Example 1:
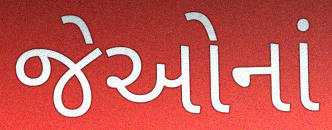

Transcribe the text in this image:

જેઓનાં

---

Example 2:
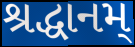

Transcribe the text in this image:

શ્રદ્ધાનમ્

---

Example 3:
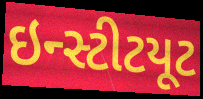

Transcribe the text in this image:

ઇન્સ્ટીટયૂટ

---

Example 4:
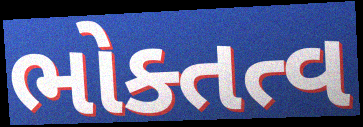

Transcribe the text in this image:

ભોક્તત્વ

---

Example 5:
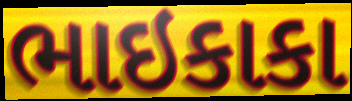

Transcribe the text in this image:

ભાઇકાકા